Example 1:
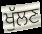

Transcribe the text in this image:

ਖੁੱਲਣ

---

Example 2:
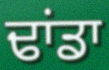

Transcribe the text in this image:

ਢਾਂਡਾ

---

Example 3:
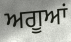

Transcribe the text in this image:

ਅਗੂਆਂ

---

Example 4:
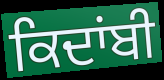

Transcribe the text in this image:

ਕਿਦਾਂਬੀ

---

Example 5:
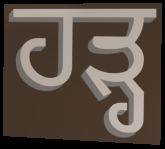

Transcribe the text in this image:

ਹੜ੍ਹ